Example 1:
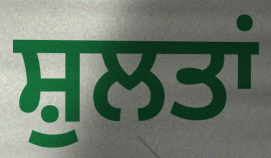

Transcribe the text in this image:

ਸ਼ੁਲਤਾਂ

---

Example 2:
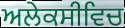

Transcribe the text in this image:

ਅਲੇਕਸੀਵਿਚ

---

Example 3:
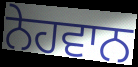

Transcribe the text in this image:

ਨੇਹਵਾਨ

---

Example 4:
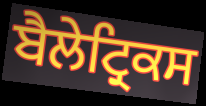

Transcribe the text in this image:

ਬੈਲੇਟ੍ਰਿਕਸ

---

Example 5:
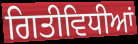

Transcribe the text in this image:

ਗਿਤੀਵਿਧੀਆਂ